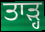
ਤਾੜ੍ਹ